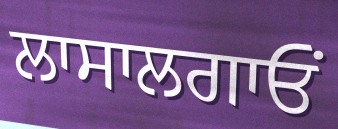
ਲਾਸਾਲਗਾਓਂ